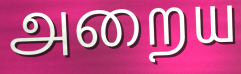
அறைய